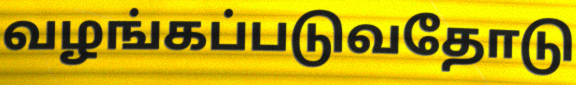
வழங்கப்படுவதோடு